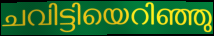
ചവിട്ടിയെറിഞ്ഞു